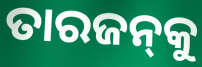
ତାରଜନ୍‌କୁ